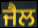
ਜੈਲ